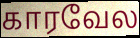
காரவேல